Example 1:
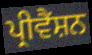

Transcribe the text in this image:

ਪ੍ਰੀਵੈਂਸ਼ਨ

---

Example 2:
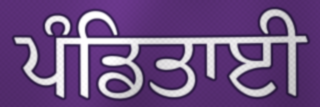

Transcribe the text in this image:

ਪੰਡਿਤਾਈ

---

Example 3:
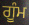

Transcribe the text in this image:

ਗੂੰਮ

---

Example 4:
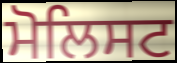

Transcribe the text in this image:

ਮੋਲਿਸਟ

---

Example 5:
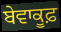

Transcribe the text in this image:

ਬੇਵਾਕੂਫ਼